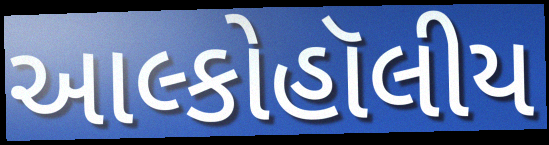
આલ્કોહૉલીય